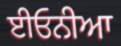
ਈਓਨੀਆ